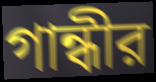
গান্ধীর